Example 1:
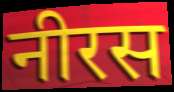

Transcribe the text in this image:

नीरस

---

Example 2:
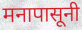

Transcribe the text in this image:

मनापासूनी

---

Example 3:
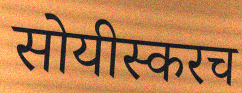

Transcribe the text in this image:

सोयीस्करच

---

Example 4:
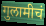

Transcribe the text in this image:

गुलामीचं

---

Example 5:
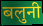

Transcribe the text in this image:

बलुनी